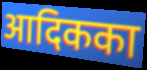
आदिकका